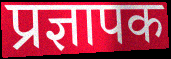
प्रज्ञापक